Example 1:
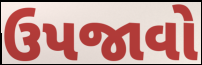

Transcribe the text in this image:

ઉપજાવો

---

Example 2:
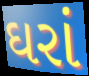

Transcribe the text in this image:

ઘરાં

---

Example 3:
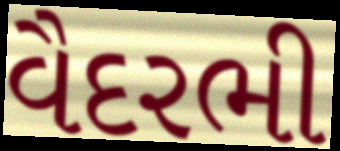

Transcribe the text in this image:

વૈદરભી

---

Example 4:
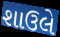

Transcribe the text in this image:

શાઉલે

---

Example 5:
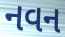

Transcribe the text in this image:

નવન